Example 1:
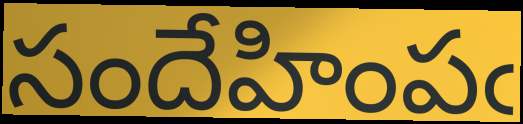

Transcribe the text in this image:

సందేహింపఁ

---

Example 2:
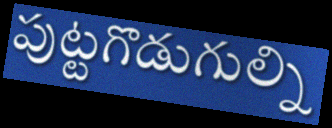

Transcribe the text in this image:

పుట్టగొడుగుల్ని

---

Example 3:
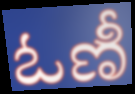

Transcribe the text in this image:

ఓణీ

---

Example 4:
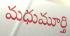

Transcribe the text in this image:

మధుమూర్తి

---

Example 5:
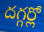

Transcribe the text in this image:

దగ్గర్లో